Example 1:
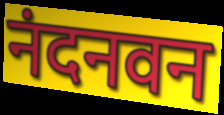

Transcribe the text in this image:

नंदनवन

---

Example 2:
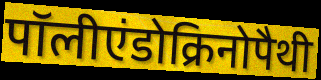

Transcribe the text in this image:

पॉलीएंडोक्रिनोपैथी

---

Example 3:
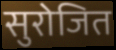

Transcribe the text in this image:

सुरोजित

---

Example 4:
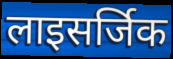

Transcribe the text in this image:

लाइसर्जिक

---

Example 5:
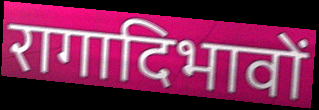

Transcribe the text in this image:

रागादिभावों